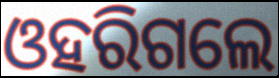
ଓହରିଗଲେ